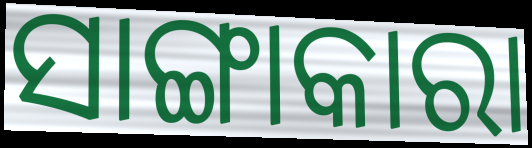
ସାଙ୍ଗାକାରା